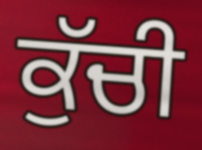
ਕੁੱਚੀ